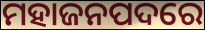
ମହାଜନପଦରେ